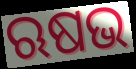
ଋଷଭ